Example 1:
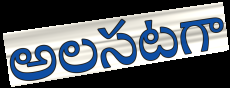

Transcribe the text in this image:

అలసటగా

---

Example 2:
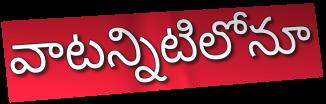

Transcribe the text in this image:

వాటన్నిటిలోనూ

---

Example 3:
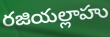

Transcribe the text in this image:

రజియల్లాహు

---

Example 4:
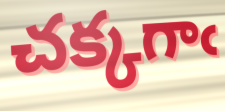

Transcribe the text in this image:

చక్కగాఁ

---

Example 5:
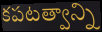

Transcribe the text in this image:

కపటత్వాన్ని